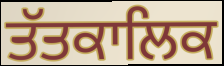
ਤੱਤਕਾਲਿਕ